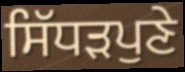
ਸਿੱਧੜਪੁਣੇ